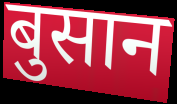
बुसान